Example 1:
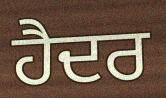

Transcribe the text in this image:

ਹੈਦਰ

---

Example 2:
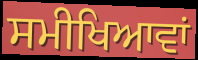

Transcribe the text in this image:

ਸਮੀਖਿਆਵਾਂ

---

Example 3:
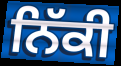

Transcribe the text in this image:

ਨਿੱਕੀ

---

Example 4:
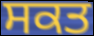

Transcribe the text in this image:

ਸਕਤ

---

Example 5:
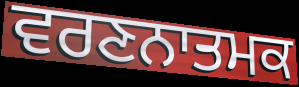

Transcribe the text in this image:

ਵਰਣਨਾਤਮਕ